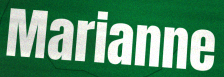
Marianne